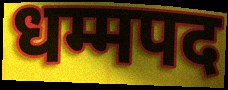
धम्मपद